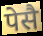
पेसै